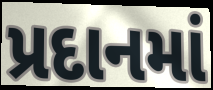
પ્રદાનમાં